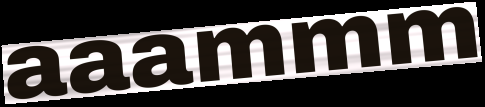
aaammm